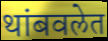
थांबवलेत